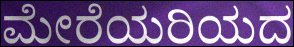
ಮೇರೆಯರಿಯದ